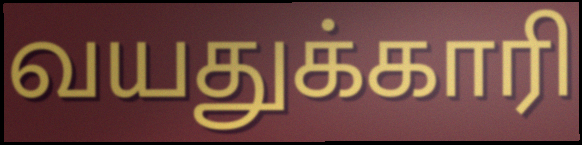
வயதுக்காரி